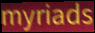
myriads